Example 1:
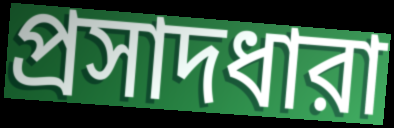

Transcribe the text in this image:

প্রসাদধারা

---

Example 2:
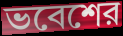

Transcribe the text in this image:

ভবেশের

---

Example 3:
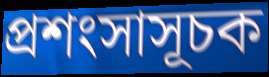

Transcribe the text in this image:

প্রশংসাসূচক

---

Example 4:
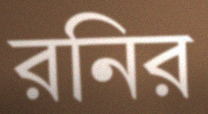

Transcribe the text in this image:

রনির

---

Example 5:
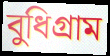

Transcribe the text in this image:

বুধিগ্রাম